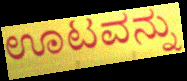
ಊಟವನ್ನು